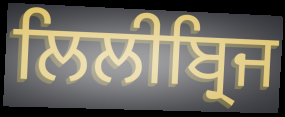
ਲਿਲੀਬ੍ਰਿਜ